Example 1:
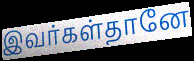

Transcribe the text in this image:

இவர்கள்தானே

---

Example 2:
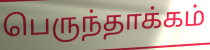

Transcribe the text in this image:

பெருந்தாக்கம்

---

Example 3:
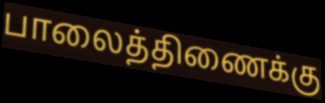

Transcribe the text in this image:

பாலைத்திணைக்கு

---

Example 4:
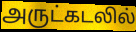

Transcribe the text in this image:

அருட்கடலில்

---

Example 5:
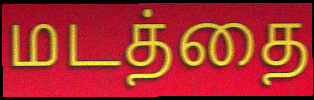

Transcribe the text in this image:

மடத்தை